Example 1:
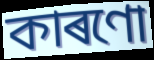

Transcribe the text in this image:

কাৰণো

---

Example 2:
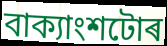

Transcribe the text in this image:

বাক্যাংশটোৰ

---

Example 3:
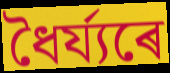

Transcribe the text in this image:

ধৈৰ্য্যৰে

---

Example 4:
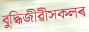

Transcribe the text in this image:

বুদ্ধিজীৱীসকলৰ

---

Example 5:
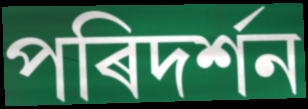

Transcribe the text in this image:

পৰিদৰ্শন